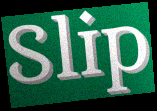
Slip